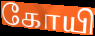
கோயி